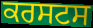
ਕਰਸਟਸ